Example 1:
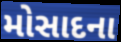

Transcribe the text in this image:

મોસાદના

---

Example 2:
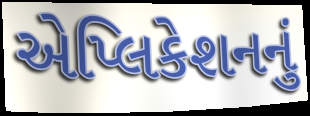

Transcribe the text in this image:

એપ્લિકેશનનું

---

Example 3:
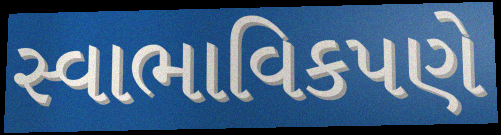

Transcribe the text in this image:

સ્વાભાવિકપણે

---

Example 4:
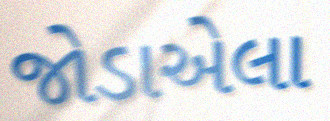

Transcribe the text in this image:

જોડાએલા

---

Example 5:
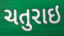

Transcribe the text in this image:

ચતુરાઇ